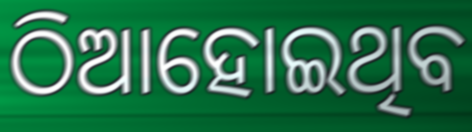
ଠିଆହୋଇଥିବ